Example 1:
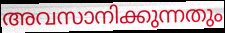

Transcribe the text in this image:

അവസാനിക്കുന്നതും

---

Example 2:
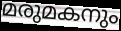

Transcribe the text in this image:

മരുമകനും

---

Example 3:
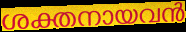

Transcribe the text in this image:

ശക്തനായവൻ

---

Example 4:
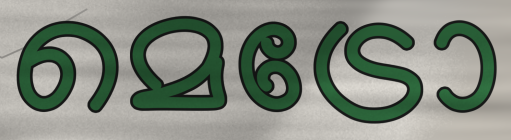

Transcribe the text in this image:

മെട്രോ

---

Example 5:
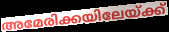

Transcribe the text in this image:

അമേരിക്കയിലേയ്ക്ക്